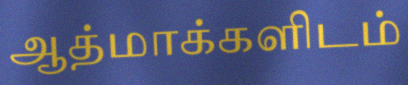
ஆத்மாக்களிடம்